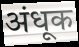
अंधूक